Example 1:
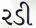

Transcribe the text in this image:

રડી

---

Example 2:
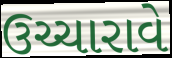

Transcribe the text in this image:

ઉચ્ચારાવે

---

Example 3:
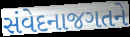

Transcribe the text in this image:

સંવેદનાજગતને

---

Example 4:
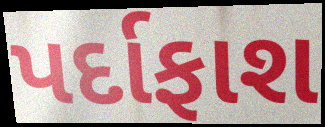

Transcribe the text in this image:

પર્દાફાશ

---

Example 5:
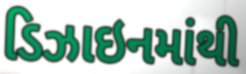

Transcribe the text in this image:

ડિઝાઇનમાંથી